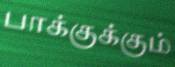
பாக்குக்கும்